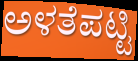
ಅಳತೆಪಟ್ಟಿ